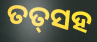
ତତ୍‌ସହ